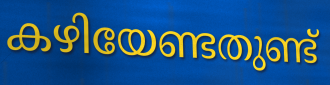
കഴിയേണ്ടതുണ്ട്